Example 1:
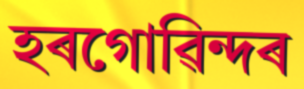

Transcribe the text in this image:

হৰগোৱিন্দৰ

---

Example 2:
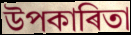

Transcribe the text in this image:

উপকাৰিতা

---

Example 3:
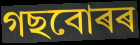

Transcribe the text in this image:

গছবোৰৰ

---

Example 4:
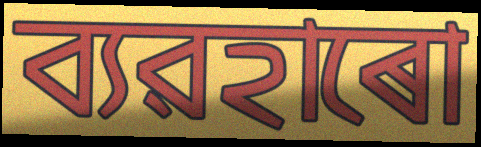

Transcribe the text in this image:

ব্যৱহাৰো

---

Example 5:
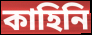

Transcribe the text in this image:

কাহিনি